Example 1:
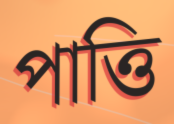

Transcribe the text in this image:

পাত্তি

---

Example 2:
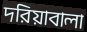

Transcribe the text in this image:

দরিয়াবালা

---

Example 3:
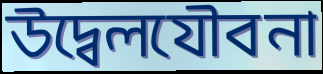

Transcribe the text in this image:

উদ্বেলযৌবনা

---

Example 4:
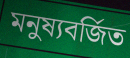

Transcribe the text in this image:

মনুষ্যবর্জিত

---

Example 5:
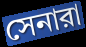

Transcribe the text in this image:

সেনারা